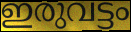
ഇരുവട്ടം